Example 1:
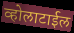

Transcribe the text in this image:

व्होलाटाईल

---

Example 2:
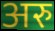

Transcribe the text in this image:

अरु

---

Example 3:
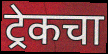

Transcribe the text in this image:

ट्रेकचा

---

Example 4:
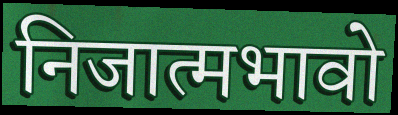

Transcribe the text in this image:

निजात्मभावो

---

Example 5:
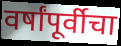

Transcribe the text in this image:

वर्षांपूर्वीचा